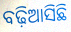
ବଢ଼ିଆସିଛି